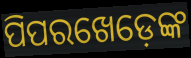
ପିପରଖେଡ଼େଙ୍କ